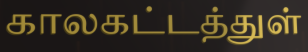
காலகட்டத்துள்